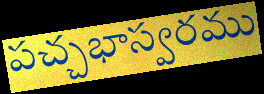
పచ్చభాస్వరము